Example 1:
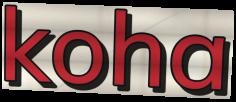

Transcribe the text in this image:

koha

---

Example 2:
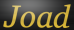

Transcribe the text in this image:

Joad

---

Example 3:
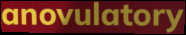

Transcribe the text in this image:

anovulatory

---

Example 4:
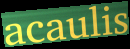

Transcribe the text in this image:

acaulis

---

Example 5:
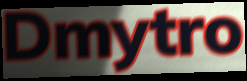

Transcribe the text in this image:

Dmytro